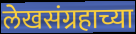
लेखसंग्रहाच्या